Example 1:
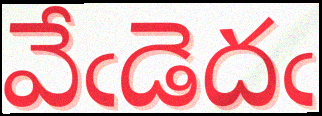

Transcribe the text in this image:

వేఁడెదఁ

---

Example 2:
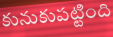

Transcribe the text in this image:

కునుకుపట్టింది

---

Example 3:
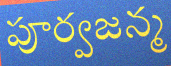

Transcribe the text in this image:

పూర్వజన్మ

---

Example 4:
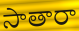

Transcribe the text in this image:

సాతారా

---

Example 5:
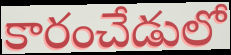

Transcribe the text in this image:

కారంచేడులో